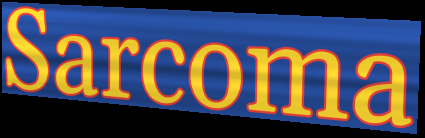
Sarcoma